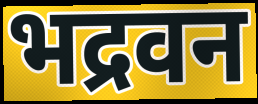
भद्रवन